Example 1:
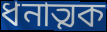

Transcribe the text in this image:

ধনাত্মক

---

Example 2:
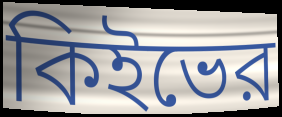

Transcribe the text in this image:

কিইভের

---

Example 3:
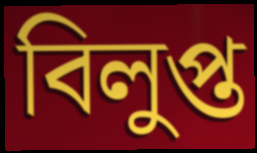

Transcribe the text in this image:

বিলুপ্ত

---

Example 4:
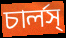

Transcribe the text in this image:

চার্লস্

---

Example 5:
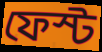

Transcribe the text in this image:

ফেস্ট